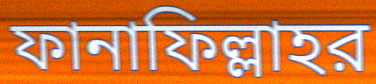
ফানাফিল্লাহর